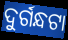
ଦୁର୍ଗନ୍ଧଟା